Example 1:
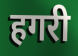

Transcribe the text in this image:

हगरी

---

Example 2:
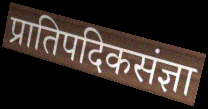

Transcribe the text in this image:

प्रातिपदिकसंज्ञा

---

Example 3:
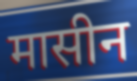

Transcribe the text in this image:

मासीन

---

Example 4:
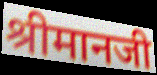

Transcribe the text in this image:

श्रीमानजी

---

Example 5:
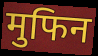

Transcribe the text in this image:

मुफिन